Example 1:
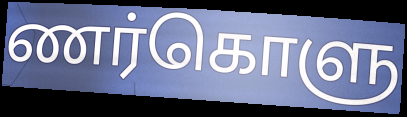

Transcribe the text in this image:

ணர்கொளு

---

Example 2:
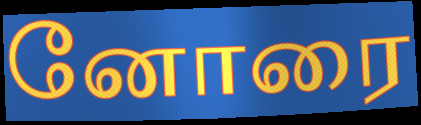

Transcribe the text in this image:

னோரை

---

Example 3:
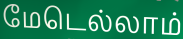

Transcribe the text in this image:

மேடெல்லாம்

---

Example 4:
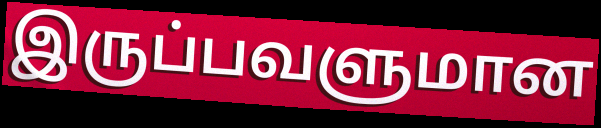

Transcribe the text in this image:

இருப்பவளுமான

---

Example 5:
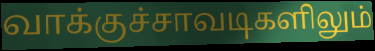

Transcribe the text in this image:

வாக்குச்சாவடிகளிலும்